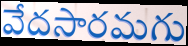
వేదసారమగు